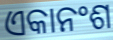
ଏକାନଂଶ